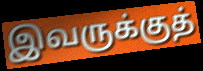
இவருக்குத்